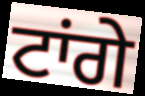
ਟਾਂਗੇ